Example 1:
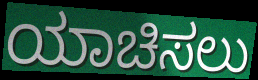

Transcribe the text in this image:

ಯಾಚಿಸಲು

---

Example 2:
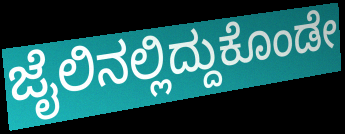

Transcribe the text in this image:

ಜೈಲಿನಲ್ಲಿದ್ದುಕೊಂಡೇ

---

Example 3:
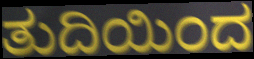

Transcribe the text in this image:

ತುದಿಯಿಂದ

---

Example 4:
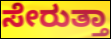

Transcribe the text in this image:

ಸೇರುತ್ತಾ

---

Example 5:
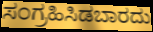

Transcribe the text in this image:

ಸಂಗ್ರಹಿಸಿಡಬಾರದು